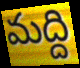
మద్ది